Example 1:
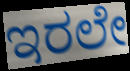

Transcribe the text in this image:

ಇರಲೇ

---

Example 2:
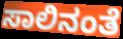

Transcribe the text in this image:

ಸಾಲಿನಂತೆ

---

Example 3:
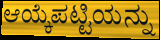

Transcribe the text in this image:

ಆಯ್ಕೆಪಟ್ಟಿಯನ್ನು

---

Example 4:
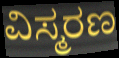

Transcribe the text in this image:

ವಿಸ್ಮರಣ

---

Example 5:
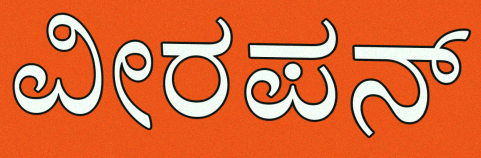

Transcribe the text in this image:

ವೀರಪನ್